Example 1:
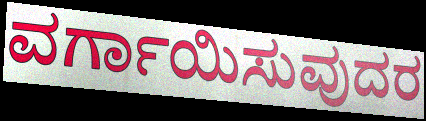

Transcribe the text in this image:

ವರ್ಗಾಯಿಸುವುದರ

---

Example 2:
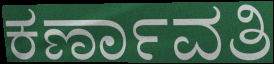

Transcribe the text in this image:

ಕರ್ಣಾವತಿ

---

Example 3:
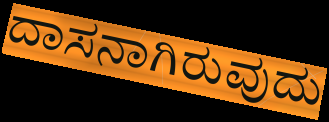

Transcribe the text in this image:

ದಾಸನಾಗಿರುವುದು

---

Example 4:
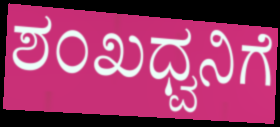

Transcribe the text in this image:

ಶಂಖಧ್ವನಿಗೆ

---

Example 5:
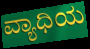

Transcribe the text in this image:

ವ್ಯಾಧಿಯ